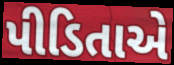
પીડિતાએ